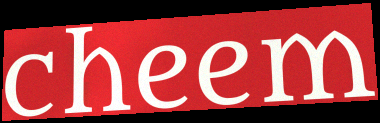
cheem